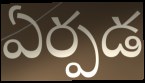
ఏర్పడ